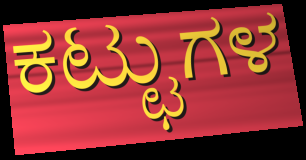
ಕಟ್ಟುಗಳ